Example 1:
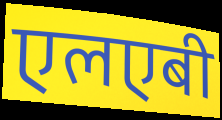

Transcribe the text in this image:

एलएबी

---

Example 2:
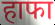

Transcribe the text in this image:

हाफा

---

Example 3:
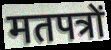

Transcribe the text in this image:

मतपत्रों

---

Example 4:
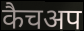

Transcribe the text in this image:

कैचअप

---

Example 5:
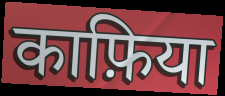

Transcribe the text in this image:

काफ़िया